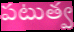
పటుత్వ